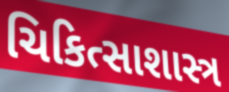
ચિકિત્સાશાસ્ત્ર